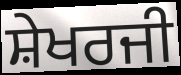
ਸ਼ੇਖਰਜੀ